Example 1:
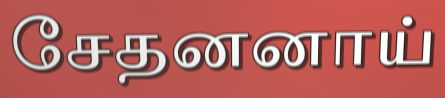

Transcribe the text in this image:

சேதனனாய்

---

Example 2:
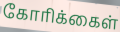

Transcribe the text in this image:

கோரிக்கைள்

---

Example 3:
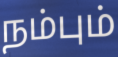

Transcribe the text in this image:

நம்பும்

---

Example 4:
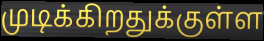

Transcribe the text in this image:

முடிக்கிறதுக்குள்ள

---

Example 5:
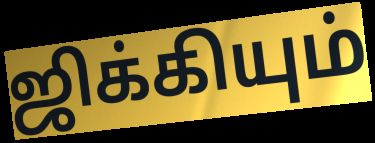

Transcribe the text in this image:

ஜிக்கியும்